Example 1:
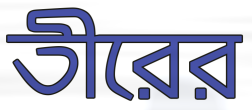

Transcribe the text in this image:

তীরের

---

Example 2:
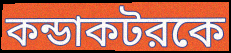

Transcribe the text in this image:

কন্ডাকটরকে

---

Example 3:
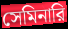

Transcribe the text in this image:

সেমিনারি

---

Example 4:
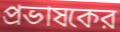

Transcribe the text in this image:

প্রভাষকের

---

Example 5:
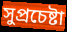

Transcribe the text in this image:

সুপ্রচেষ্টা